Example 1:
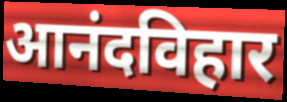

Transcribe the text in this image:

आनंदविहार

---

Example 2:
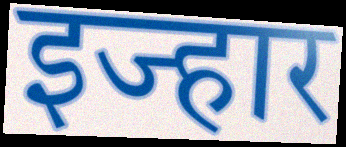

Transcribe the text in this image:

इज्हार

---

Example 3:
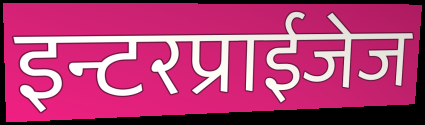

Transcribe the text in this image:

इन्टरप्राईजेज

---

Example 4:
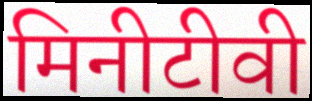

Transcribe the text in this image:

मिनीटीवी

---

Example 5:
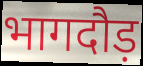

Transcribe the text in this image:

भागदौड़